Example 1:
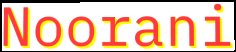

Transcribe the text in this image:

Noorani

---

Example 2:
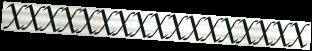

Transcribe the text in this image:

xxxxxxxxxxxxxxxxx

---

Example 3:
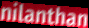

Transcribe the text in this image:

nilanthan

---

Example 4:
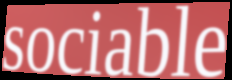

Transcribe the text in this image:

sociable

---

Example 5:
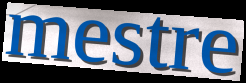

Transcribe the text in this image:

mestre